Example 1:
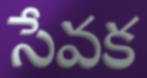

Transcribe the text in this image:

సేవక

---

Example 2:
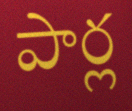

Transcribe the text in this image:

పార్ల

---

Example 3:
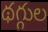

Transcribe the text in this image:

థగ్గుల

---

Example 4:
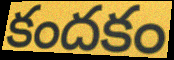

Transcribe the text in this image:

కందకం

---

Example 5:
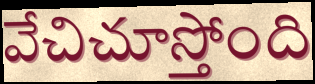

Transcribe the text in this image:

వేచిచూస్తోంది